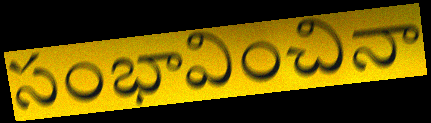
సంభావించినా